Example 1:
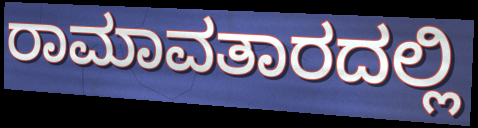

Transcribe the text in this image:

ರಾಮಾವತಾರದಲ್ಲಿ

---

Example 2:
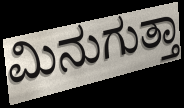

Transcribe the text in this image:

ಮಿನುಗುತ್ತಾ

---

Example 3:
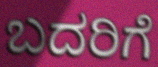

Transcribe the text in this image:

ಬದರಿಗೆ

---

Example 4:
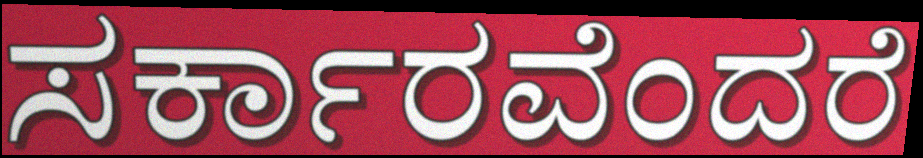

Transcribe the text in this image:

ಸರ್ಕಾರವೆಂದರೆ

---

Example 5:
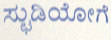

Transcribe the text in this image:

ಸ್ಟುಡಿಯೋಗೆ